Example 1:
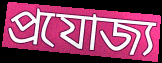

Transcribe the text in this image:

প্রযোজ্য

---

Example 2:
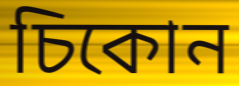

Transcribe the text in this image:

চিকোন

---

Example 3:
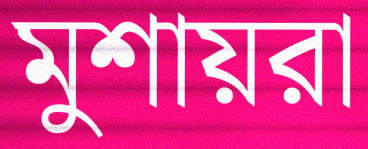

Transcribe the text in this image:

মুশায়রা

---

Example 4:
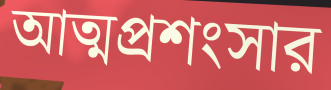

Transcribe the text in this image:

আত্মপ্রশংসার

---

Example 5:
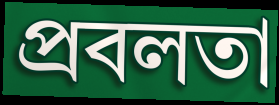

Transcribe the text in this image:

প্রবলতা